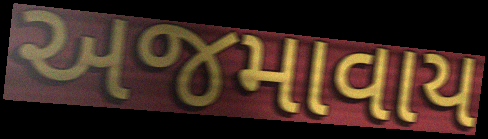
અજમાવાય